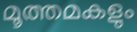
മൂത്തമകളും